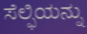
ಸೆಲ್ಫಿಯನ್ನು